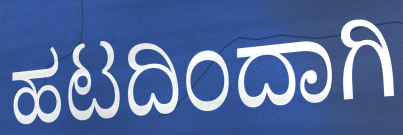
ಹಟದಿಂದಾಗಿ